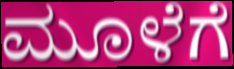
ಮೂಳೆಗೆ